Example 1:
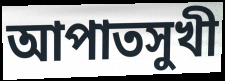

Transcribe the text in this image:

আপাতসুখী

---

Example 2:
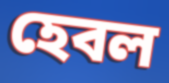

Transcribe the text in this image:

হেবল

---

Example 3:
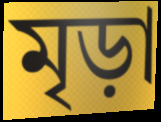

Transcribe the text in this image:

মৃড়া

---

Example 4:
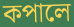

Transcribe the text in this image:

কপালে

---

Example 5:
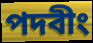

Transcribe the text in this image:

পদবীং